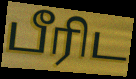
பீரிட